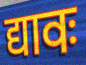
द्यावः